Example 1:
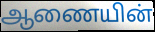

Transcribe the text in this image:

ஆணையின்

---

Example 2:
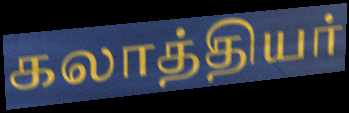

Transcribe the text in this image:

கலாத்தியர்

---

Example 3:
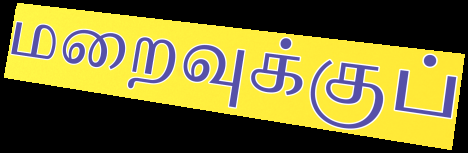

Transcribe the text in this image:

மறைவுக்குப்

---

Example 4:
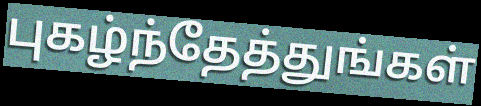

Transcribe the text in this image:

புகழ்ந்தேத்துங்கள்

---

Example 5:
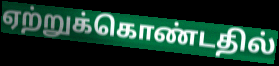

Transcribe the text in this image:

ஏற்றுக்கொண்டதில்